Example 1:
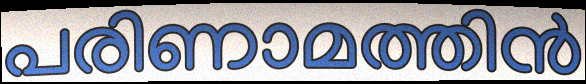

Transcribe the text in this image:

പരിണാമത്തിൻ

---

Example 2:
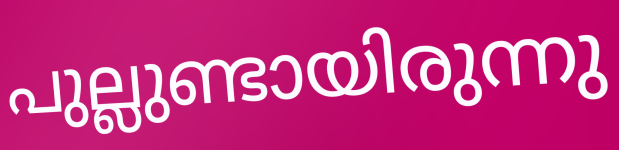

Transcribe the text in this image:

പുല്ലുണ്ടായിരുന്നു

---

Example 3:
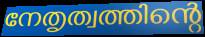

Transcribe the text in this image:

നേതൃത്വത്തിന്റെ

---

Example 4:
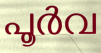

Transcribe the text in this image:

പൂർവ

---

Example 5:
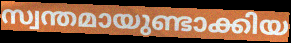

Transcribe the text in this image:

സ്വന്തമായുണ്ടാക്കിയ